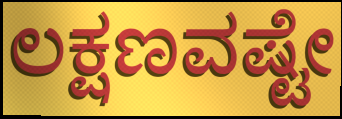
ಲಕ್ಷಣವಷ್ಟೇ